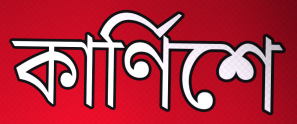
কার্ণিশে